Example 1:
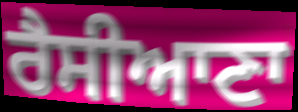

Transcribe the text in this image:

ਰੈਸੀਆਣਾ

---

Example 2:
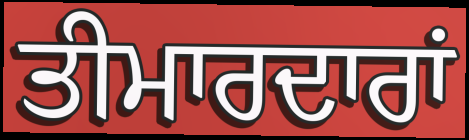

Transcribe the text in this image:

ਤੀਮਾਰਦਾਰਾਂ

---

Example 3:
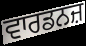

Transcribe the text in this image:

ਵਾਰਡਨਜ਼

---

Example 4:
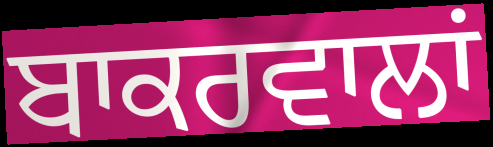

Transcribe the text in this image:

ਬਾਕਰਵਾਲਾਂ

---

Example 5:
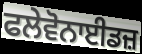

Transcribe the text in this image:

ਫਲੇਵੋਨਾਈਡਜ਼